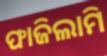
ଫାଜିଲାମି